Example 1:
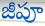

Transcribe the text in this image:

జీపూ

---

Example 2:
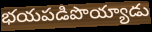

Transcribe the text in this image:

భయపడిపొయ్యాడు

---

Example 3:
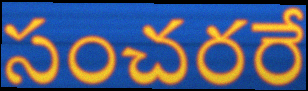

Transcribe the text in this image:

సంచరరే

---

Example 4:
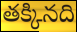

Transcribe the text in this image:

తక్కినది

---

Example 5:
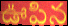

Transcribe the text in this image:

ఊపిన